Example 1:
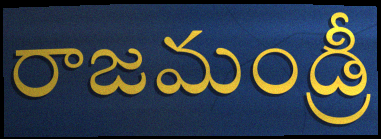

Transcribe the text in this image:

రాజమండ్రీ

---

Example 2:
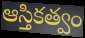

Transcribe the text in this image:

ఆస్తికత్వం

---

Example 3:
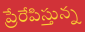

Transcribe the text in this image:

ప్రేరేపిస్తున్న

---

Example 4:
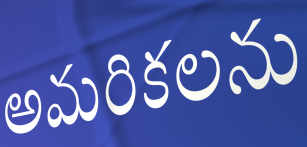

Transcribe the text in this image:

అమరికలను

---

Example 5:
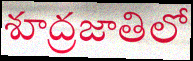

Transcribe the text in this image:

శూద్రజాతిలో